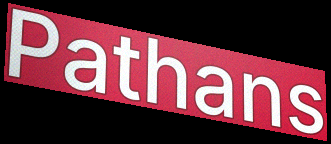
Pathans